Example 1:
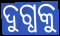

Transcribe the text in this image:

ଦୁଗ୍ଧକୁ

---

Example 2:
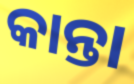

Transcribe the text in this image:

କାନ୍ତା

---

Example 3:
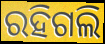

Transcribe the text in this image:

ରହିଗଲି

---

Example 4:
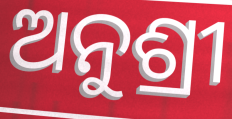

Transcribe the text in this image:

ଅନୁଶ୍ରୀ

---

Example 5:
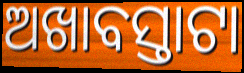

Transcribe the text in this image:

ଅଖାବସ୍ତାଟା